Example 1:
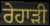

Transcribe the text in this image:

ਰੇਹਾੜੀ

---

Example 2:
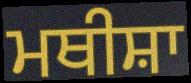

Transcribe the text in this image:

ਮਥੀਸ਼ਾ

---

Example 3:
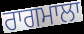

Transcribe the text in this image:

ਰਾਗਮਾਲਾ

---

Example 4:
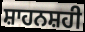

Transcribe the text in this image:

ਸ਼ਾਹਨਸ਼ਹੀ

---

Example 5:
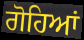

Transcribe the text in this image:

ਗੋਹਿਆਂ